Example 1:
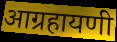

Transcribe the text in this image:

आग्रहायणी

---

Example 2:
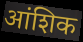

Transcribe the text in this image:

आंशिक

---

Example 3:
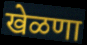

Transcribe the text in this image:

खेळणा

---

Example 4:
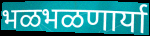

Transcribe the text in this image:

भळभळणार्या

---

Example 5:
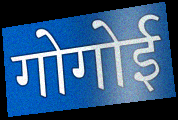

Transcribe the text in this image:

गोगोई